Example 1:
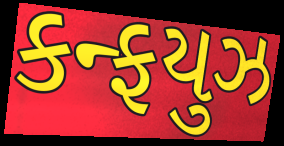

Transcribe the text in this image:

કન્ફયુઝ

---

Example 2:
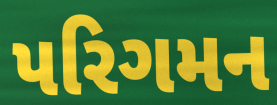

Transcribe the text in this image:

પરિગમન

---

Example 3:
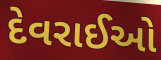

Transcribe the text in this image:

દેવરાઈઓ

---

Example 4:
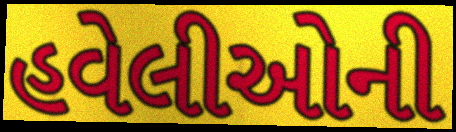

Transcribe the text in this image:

હવેલીઓની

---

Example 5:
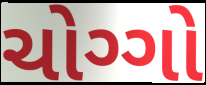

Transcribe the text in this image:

ચોગ્ગો